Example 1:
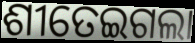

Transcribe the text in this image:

ଶୀତେଇଗଲା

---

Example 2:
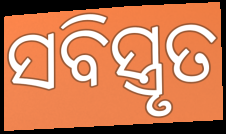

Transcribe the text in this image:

ସବିସ୍ତ୍ରୃତ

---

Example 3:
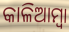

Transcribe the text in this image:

କାଳିଆମ୍ବା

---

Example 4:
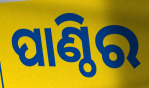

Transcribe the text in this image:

ପାଣ୍ଠିର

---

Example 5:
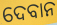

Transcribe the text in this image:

ଦେବାନ